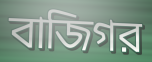
বাজিগর